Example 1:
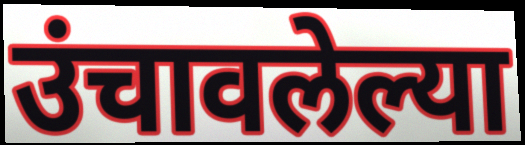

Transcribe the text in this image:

उंचावलेल्या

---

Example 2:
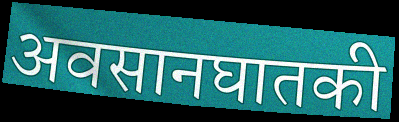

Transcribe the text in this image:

अवसानघातकी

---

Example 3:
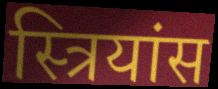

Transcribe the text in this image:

स्त्रियांस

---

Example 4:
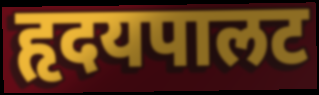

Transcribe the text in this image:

हृदयपालट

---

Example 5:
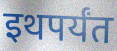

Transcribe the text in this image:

इथपर्यंत